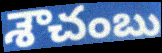
శౌచంబు